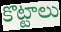
కొట్టాలు